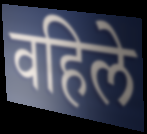
वहिले